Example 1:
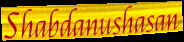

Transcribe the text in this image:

Shabdanushasan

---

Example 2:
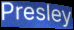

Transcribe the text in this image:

Presley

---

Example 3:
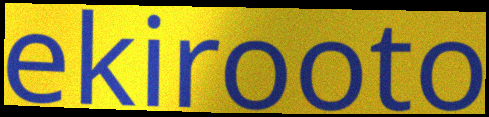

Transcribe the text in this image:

ekirooto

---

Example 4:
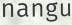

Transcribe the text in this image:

nangu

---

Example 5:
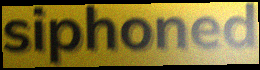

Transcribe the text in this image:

siphoned